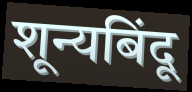
शून्यबिंदू